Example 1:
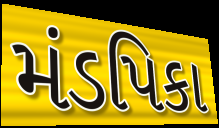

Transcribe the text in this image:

મંડપિકા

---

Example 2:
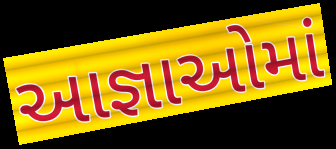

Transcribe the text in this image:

આજ્ઞાઓમાં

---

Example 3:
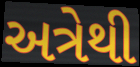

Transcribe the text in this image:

અત્રેથી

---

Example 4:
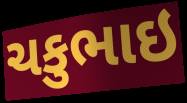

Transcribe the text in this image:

ચકુભાઇ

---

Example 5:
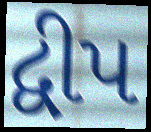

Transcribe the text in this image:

દ્વીપ